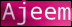
Ajeem